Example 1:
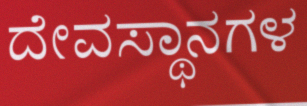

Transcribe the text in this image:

ದೇವಸ್ಥಾನಗಳ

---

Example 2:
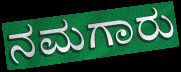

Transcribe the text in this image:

ನಮಗಾರು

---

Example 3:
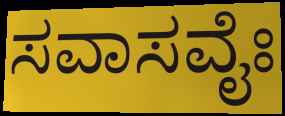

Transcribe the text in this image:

ಸವಾಸವೈಃ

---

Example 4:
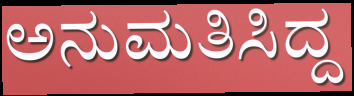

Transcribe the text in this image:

ಅನುಮತಿಸಿದ್ದ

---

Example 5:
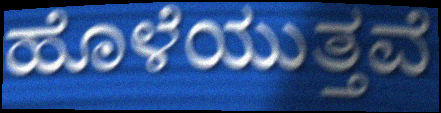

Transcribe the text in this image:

ಹೊಳೆಯುತ್ತವೆ